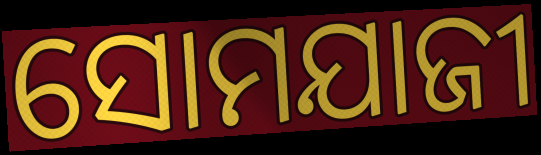
ସୋମଯାଜୀ